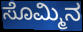
ಸೊಮ್ಮಿನ